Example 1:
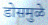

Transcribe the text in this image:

डोसमुळे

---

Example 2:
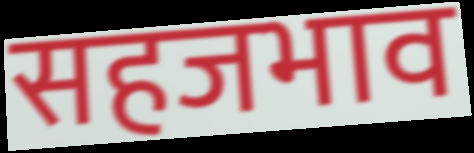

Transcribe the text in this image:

सहजभाव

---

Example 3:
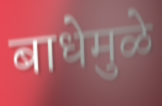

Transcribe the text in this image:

बाधेमुळे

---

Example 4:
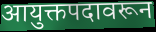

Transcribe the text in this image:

आयुक्तपदावरून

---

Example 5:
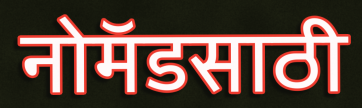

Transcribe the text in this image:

नोमॅडसाठी